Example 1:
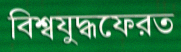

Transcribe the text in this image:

বিশ্বযুদ্ধফেরত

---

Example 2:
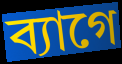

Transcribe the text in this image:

ব্যাগে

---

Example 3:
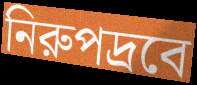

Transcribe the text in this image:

নিরুপদ্রবে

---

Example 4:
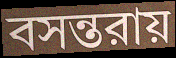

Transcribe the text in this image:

বসন্তরায়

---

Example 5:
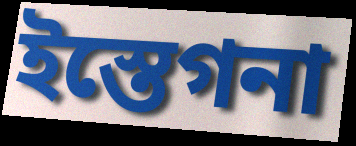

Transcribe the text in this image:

ইস্তেগনা